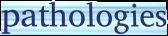
pathologies